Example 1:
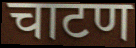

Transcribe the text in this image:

चाटण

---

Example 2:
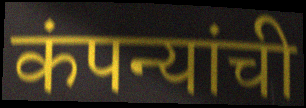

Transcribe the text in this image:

कंपन्यांची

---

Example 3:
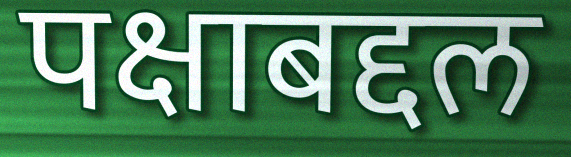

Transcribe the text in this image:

पक्षाबद्दल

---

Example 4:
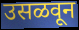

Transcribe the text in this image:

उसळवून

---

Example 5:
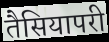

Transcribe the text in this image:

तैसियापरी